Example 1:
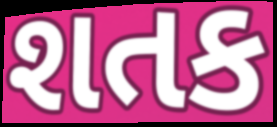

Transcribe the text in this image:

શતક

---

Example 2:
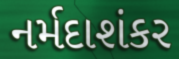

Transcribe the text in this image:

નર્મદાશંકર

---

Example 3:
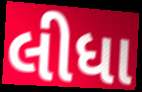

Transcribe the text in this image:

લીધા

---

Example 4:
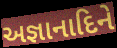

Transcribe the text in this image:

અજ્ઞાનાદિને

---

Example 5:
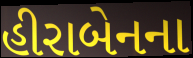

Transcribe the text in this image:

હીરાબેનના